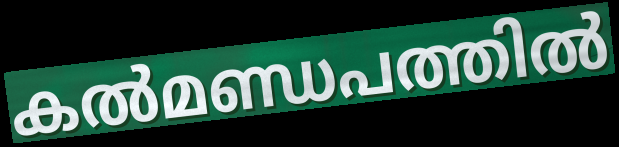
കൽമണ്ഡപത്തിൽ